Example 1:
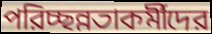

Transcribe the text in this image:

পরিচ্ছন্নতাকর্মীদের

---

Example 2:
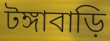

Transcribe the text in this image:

টঙ্গাবাড়ি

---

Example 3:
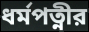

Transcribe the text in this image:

ধর্মপত্নীর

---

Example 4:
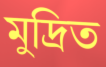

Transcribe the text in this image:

মুদ্রিত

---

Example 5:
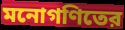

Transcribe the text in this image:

মনোগণিতের